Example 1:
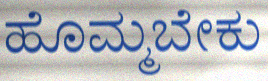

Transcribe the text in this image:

ಹೊಮ್ಮಬೇಕು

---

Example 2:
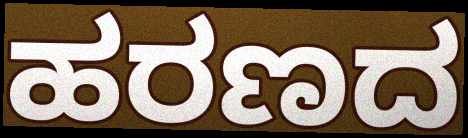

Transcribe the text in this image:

ಹರಣದ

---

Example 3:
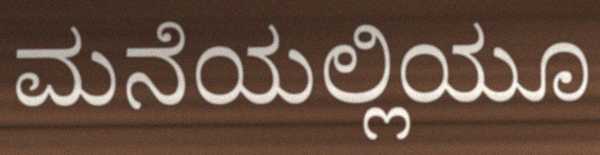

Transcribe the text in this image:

ಮನೆಯಲ್ಲಿಯೂ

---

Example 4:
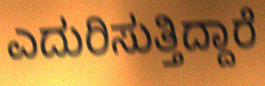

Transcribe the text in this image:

ಎದುರಿಸುತ್ತಿದ್ದಾರೆ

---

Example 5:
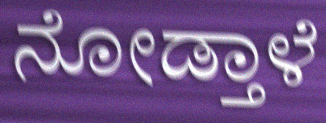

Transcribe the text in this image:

ನೋಡ್ತಾಳೆ